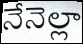
నేనెల్లా